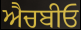
ਐਚਬੀਓ